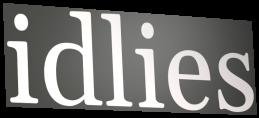
idlies